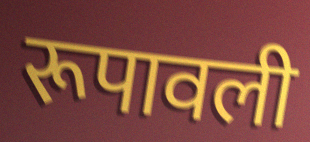
रूपावली